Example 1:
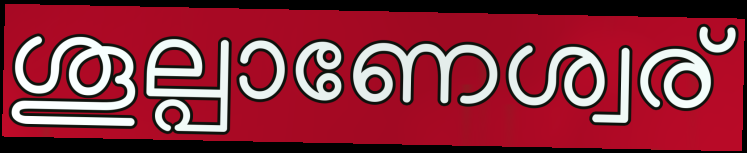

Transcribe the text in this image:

ശൂല്പാണേശ്വര്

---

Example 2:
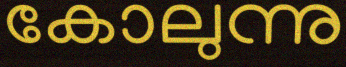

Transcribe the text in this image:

കോലുന്നു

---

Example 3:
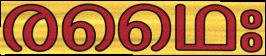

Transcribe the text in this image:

രഥൈഃ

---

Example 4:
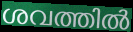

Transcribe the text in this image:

ശവത്തിൽ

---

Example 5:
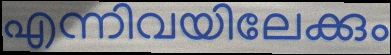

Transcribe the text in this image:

എന്നിവയിലേക്കും